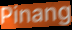
Pinang